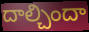
దాల్చిందా